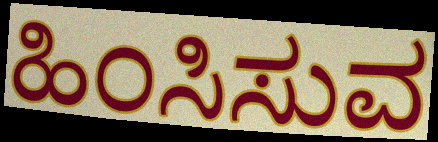
ಹಿಂಸಿಸುವ